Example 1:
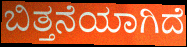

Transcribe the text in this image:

ಬಿತ್ತನೆಯಾಗಿದೆ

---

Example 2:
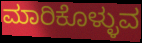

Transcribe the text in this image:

ಮಾರಿಕೊಳ್ಳುವ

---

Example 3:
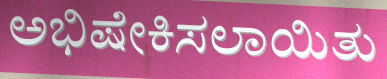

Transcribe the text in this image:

ಅಭಿಷೇಕಿಸಲಾಯಿತು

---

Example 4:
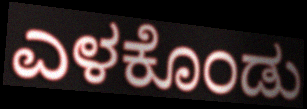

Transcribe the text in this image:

ಎಳಕೊಂಡು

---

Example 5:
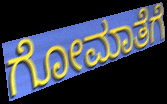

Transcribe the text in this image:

ಗೋಮಾತೆಗೆ